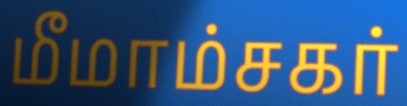
மீமாம்சகர்